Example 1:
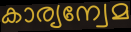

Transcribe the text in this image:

കാര്യന്വേമ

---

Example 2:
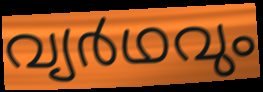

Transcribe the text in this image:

വ്യർഥവും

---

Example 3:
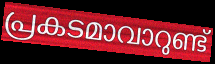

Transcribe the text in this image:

പ്രകടമാവാറുണ്ട്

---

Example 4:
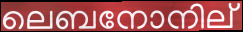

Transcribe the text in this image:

ലെബനോനില്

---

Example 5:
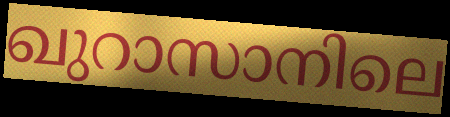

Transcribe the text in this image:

ഖുറാസാനിലെ